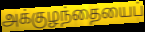
அக்குழந்தையைப்